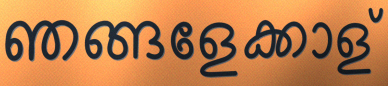
ഞങ്ങളേക്കാള്